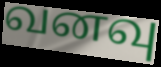
வனவு